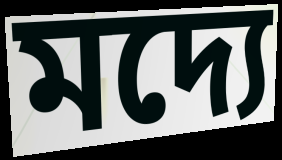
মদ্যে